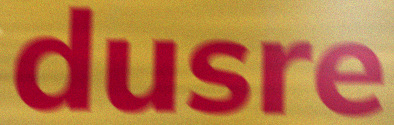
dusre